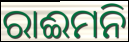
ରାଈମନି